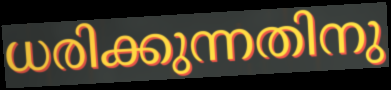
ധരിക്കുന്നതിനു